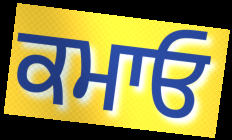
ਕਮਾਓ